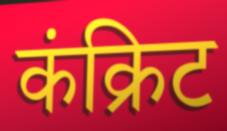
कंक्रिट